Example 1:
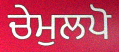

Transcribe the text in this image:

ਚੇਮੁਲਪੋ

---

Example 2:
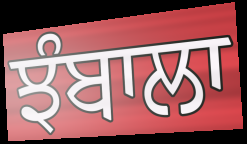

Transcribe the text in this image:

ਝੰਬਾਲਾ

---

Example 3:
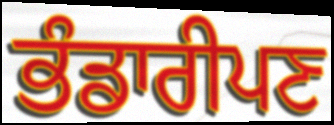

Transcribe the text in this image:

ਭੰਡਾਰੀਪਣ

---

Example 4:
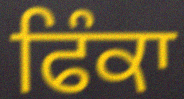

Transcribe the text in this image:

ਫਿੰਕਾ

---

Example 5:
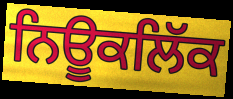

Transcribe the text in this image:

ਨਿਊਕਲਿੱਕ